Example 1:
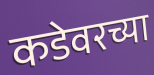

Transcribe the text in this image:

कडेवरच्या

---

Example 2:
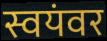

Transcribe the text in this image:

स्वयंवर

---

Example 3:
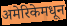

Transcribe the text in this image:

अमेरिकेमधून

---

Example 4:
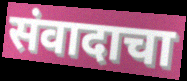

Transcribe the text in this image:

संवादाचा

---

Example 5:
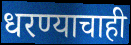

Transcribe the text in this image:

धरण्याचाही